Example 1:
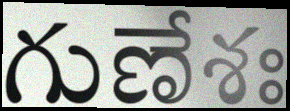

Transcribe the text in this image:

గుణేశః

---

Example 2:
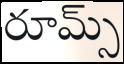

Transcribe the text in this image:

రూమ్స్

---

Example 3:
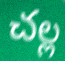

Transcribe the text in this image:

చల్ల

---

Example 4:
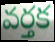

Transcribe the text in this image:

వర్తక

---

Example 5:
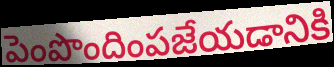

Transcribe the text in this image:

పెంపొందింపజేయడానికి